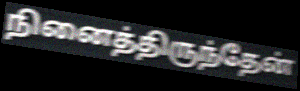
நினைத்திருந்தேன்